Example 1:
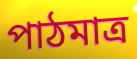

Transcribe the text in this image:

পাঠমাত্র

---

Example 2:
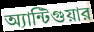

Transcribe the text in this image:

অ্যান্টিগুয়ার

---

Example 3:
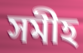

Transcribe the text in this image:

সমীহ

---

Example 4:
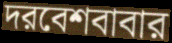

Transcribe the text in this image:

দরবেশবাবার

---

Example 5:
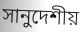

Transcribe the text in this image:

সানুদেশীয়